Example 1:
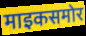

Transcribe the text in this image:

माइकसमोर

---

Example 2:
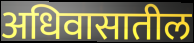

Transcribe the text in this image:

अधिवासातील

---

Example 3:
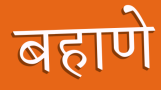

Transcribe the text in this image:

बहाणे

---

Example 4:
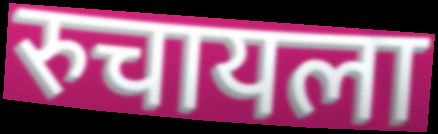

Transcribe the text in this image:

रुचायला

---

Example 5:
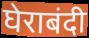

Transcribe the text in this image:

घेराबंदी